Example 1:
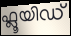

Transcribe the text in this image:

ഫ്ലൂയിഡ്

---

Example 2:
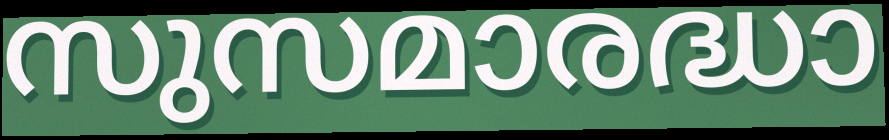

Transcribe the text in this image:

സുസമാരദ്ധാ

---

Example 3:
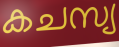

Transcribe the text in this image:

കചസ്യ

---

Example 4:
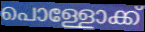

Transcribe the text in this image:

പൊള്ളോക്ക്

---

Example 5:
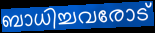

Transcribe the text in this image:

ബാധിച്ചവരോട്